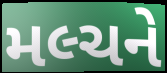
મલ્ચને